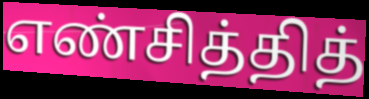
எண்சித்தித்